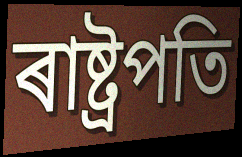
ৰাষ্ট্ৰপতি